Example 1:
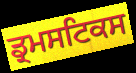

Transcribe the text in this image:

ਡ੍ਰਮਸਟਿਕਸ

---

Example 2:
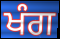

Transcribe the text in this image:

ਖੰਗ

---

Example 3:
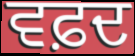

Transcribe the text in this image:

ਵਫ਼ਦ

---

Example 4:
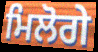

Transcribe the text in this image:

ਮਿਲੋਗੇ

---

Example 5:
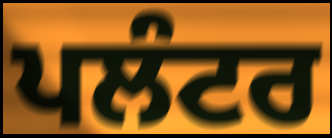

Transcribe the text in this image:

ਪਲੰਟਰ